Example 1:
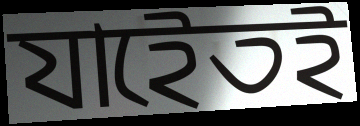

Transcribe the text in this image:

যাইেতই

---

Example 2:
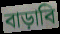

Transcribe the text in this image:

বাড়াবি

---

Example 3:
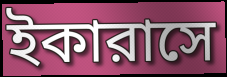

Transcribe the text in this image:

ইকারাসে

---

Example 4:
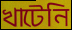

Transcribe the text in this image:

খাটেনি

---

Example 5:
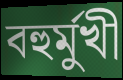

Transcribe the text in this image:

বহুর্মুখী